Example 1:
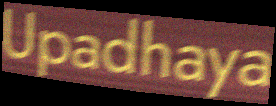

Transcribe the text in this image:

Upadhaya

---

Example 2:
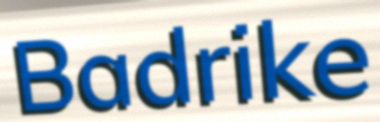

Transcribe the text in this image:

Badrike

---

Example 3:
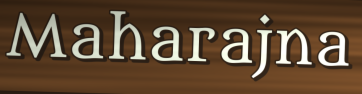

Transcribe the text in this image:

Maharajna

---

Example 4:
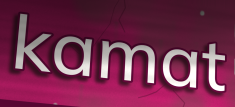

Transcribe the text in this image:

kamat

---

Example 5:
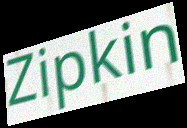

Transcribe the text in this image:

Zipkin